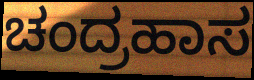
ಚಂದ್ರಹಾಸ